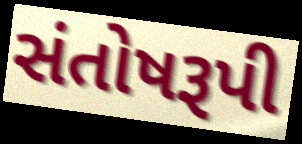
સંતોષરૂપી